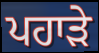
ਪਹਾੜੇ